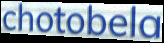
chotobela